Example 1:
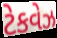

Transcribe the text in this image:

ટેકવેઝ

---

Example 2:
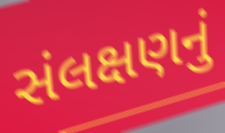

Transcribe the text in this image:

સંલક્ષણનું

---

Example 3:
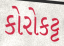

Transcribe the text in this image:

કોરોકટ્ટ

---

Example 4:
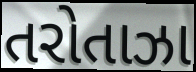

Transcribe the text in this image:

તરોતાઝા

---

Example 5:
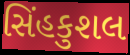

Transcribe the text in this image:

સિંહકુશલ